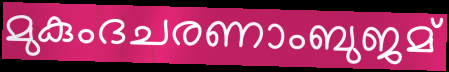
മുകുംദചരണാംബുജമ്